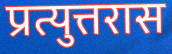
प्रत्युत्तरास